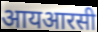
आयआरसी